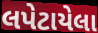
લપેટાયેલા